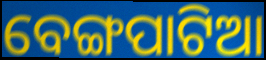
ବେଙ୍ଗପାଟିଆ